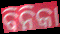
ବିନିକା